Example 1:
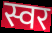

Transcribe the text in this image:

स्वर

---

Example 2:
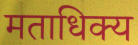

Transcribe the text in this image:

मताधिक्य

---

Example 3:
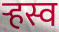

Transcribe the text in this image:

ऱ्हस्व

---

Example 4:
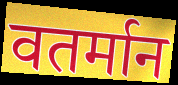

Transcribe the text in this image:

वतर्मान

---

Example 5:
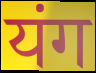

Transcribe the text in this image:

यंग